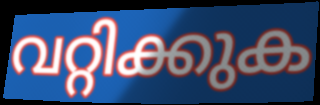
വറ്റിക്കുക